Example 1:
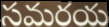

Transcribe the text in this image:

సమరయ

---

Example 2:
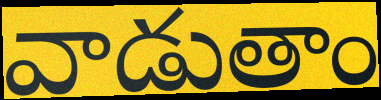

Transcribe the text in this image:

వాడుతాం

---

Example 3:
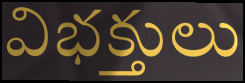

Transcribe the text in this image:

విభక్తులు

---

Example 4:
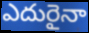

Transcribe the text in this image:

ఎదురైనా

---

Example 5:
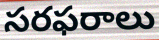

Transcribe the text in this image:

సరఫరాలు